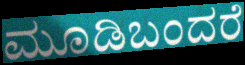
ಮೂಡಿಬಂದರೆ